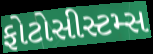
ફોટોસીસ્ટમ્સ